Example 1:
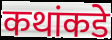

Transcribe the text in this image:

कथांकडे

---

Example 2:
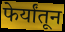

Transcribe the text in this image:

फेर्यांतून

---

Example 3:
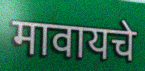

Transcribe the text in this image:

मावायचे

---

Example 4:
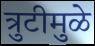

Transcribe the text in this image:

त्रुटीमुळे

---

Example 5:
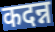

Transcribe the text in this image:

कदन्न